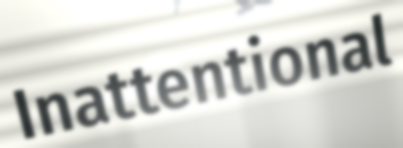
Inattentional